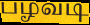
பழவடி